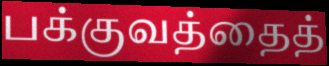
பக்குவத்தைத்